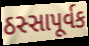
ઠસ્સાપૂર્વક